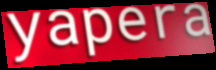
yapera